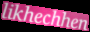
likhechhen